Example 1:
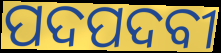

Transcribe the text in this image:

ପଦପଦବୀ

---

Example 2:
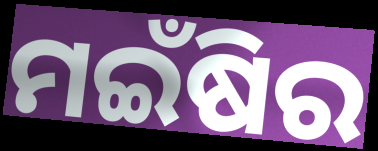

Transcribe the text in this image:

ମଇଁଷିର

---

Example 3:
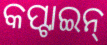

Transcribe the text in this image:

କପ୍ଟାଇନ୍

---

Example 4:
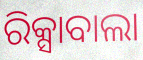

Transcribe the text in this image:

ରିକ୍ସାବାଲା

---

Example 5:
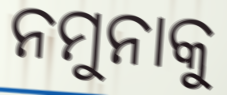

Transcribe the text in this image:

ନମୁନାକୁ